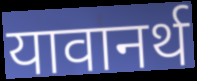
यावानर्थ